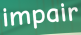
impair